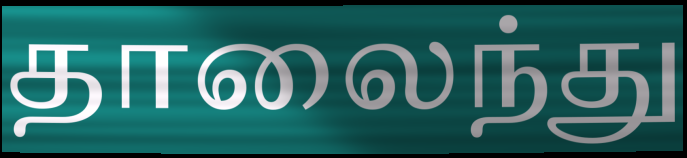
தாலைந்து